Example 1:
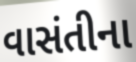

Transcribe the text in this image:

વાસંતીના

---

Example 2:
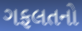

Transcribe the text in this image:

ગફલતનો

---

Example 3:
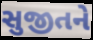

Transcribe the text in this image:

સુજીતને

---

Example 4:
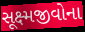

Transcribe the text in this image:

સૂક્ષ્મજીવોના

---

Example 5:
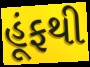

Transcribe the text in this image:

હૂંફથી